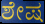
ಶೇಷ